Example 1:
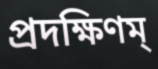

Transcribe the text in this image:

প্রদক্ষিণম্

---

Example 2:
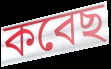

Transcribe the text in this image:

কবেছ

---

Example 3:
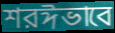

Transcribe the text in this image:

শরঈভাবে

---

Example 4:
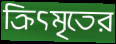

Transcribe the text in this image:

ক্রিৎমৃতের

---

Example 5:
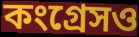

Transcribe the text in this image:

কংগ্রেসও